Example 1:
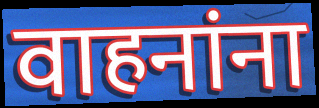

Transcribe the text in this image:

वाहनांना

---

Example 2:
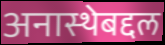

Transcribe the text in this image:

अनास्थेबद्दल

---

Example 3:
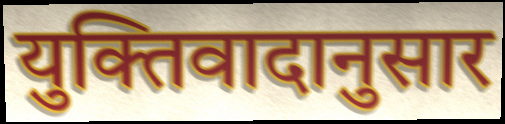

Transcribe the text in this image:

युक्तिवादानुसार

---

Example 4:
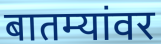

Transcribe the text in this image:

बातम्यांवर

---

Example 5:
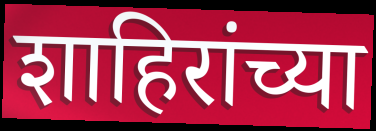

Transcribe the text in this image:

शाहिरांच्या